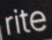
rite